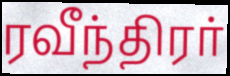
ரவீந்திரர்